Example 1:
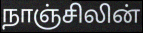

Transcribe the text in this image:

நாஞ்சிலின்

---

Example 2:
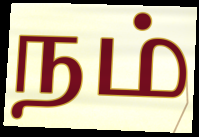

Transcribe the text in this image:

நம்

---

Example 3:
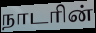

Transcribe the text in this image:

நாடரின்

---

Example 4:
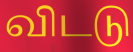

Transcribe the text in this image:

விடடு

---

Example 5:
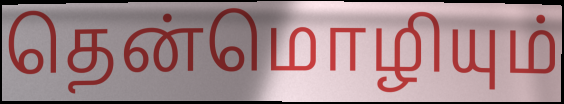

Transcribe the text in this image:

தென்மொழியும்